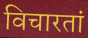
विचारतां